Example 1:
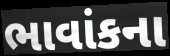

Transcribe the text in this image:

ભાવાંકના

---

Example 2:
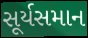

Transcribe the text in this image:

સૂર્યસમાન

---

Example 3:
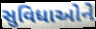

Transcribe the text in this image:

સુવિધાઓને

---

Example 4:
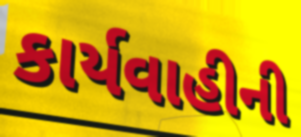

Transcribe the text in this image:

કાર્યવાહીની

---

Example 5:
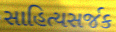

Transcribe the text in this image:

સાહિત્યસર્જક